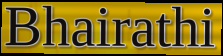
Bhairathi